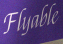
Flyable